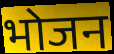
भोजन